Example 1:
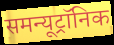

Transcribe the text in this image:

समन्यूट्रॉनिक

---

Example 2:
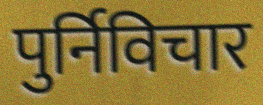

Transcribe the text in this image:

पुर्निविचार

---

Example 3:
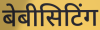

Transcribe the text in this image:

बेबीसिटिंग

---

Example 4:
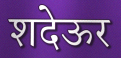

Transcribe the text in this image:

शदेऊर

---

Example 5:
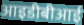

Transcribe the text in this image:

आइडीबीआई